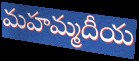
మహమ్మదీయ